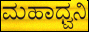
ಮಹಾಧ್ವನಿ